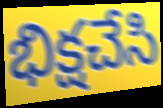
భిక్షచేసి